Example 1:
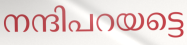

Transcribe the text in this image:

നന്ദിപറയട്ടെ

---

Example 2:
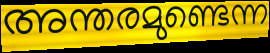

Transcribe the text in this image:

അന്തരമുണ്ടെന്ന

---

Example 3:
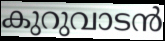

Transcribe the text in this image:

കുറുവാടൻ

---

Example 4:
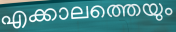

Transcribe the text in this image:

എക്കാലത്തെയും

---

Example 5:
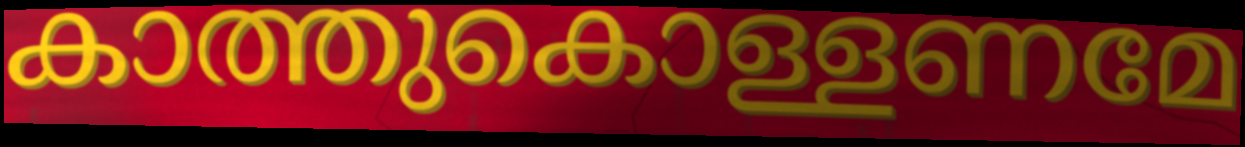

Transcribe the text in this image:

കാത്തുകൊള്ളണമേ